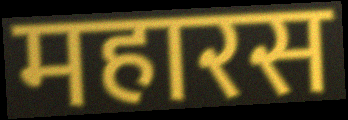
महारस